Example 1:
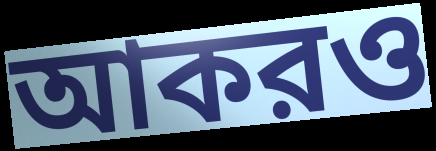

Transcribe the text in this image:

আকরও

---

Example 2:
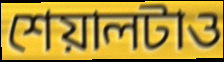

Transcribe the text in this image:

শেয়ালটাও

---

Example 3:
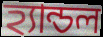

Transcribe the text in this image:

হ্যান্ডল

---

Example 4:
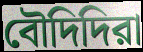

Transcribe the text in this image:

বৌদিদিরা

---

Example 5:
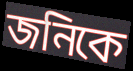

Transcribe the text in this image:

জনিকে